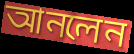
আনলেন